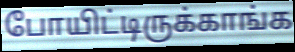
போயிட்டிருக்காங்க